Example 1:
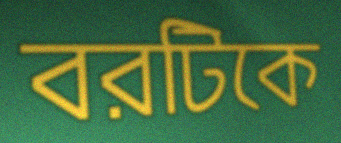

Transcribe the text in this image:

বরটিকে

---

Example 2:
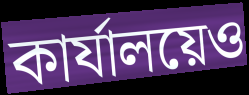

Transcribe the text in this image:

কার্যালয়েও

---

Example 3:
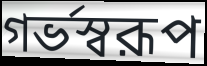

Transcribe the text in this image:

গর্ভস্বরূপ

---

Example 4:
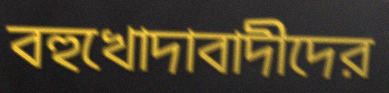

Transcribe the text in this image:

বহুখোদাবাদীদের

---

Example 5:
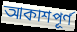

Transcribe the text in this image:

আকাশপূর্ণ